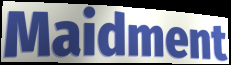
Maidment